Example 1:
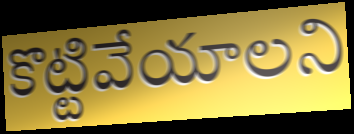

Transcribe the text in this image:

కొట్టివేయాలని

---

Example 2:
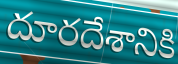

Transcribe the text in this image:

దూరదేశానికి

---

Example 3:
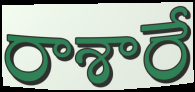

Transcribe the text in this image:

రాశారే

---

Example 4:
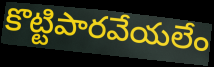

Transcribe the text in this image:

కొట్టిపారవేయలేం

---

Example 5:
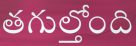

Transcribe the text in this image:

తగుల్తోంది